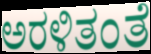
ಅರಳಿತಂತೆ